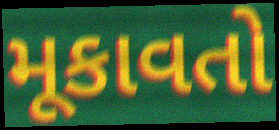
મૂકાવતો